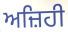
ਅਜ਼ਿਹੀ